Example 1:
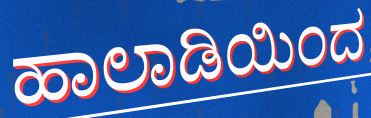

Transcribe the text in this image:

ಹಾಲಾಡಿಯಿಂದ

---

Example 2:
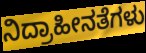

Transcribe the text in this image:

ನಿದ್ರಾಹೀನತೆಗಳು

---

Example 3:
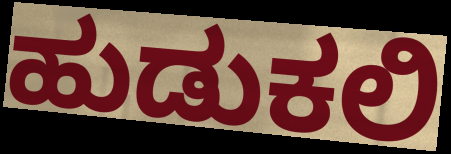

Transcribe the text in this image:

ಹುಡುಕಲಿ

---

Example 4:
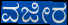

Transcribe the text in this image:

ವಜೀರ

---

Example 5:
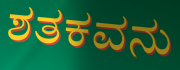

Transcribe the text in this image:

ಶತಕವನು